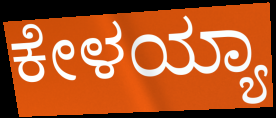
ಕೇಳಯ್ಯಾ